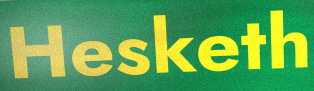
Hesketh